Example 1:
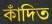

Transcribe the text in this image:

কাঁদিত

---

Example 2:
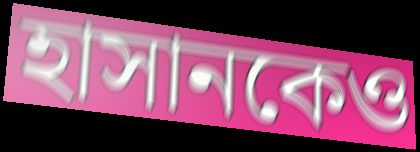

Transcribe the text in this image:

হাসানকেও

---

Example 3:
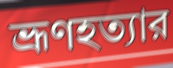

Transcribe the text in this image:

ভ্রূণহত্যার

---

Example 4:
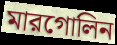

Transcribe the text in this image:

মারগোলিন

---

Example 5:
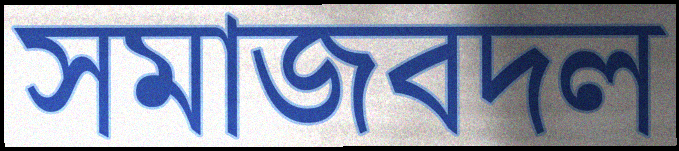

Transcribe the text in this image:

সমাজবদল